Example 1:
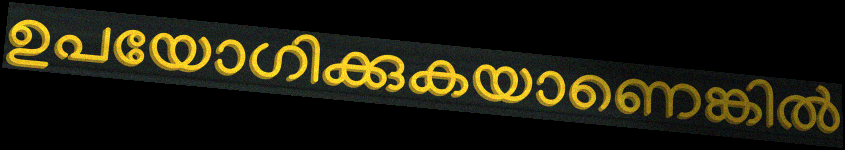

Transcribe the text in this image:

ഉപയോഗിക്കുകയാണെങ്കിൽ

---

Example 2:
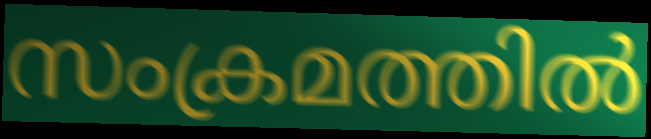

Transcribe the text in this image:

സംക്രമത്തിൽ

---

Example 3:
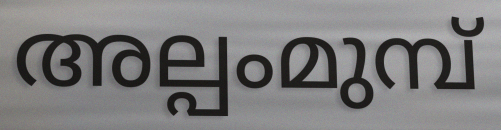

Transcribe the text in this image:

അല്പംമുമ്പ്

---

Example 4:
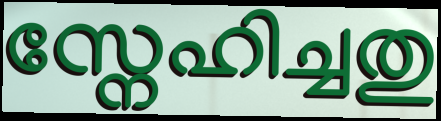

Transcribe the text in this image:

സ്നേഹിച്ചതു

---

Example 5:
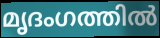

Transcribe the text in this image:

മൃദംഗത്തിൽ